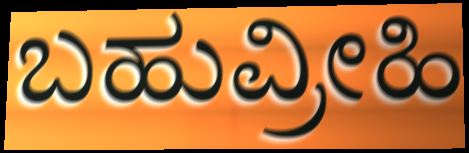
ಬಹುವ್ರೀಹಿ